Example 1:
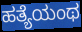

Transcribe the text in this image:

ಹತ್ಯೆಯಂಥ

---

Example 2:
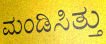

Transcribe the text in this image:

ಮಂಡಿಸಿತ್ತು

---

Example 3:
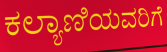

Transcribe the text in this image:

ಕಲ್ಯಾಣಿಯವರಿಗೆ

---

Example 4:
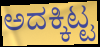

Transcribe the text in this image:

ಅದಕ್ಕಿಟ್ಟ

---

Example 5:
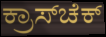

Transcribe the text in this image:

ಕ್ರಾಸ್‌ಚೆಕ್